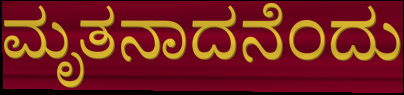
ಮೃತನಾದನೆಂದು